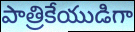
పాత్రికేయుడిగా